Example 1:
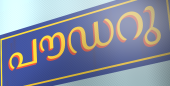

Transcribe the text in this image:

പൗഡറു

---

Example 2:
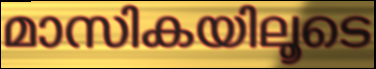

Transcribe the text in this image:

മാസികയിലൂടെ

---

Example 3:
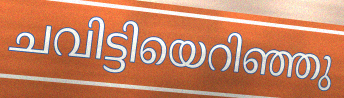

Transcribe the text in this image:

ചവിട്ടിയെറിഞ്ഞു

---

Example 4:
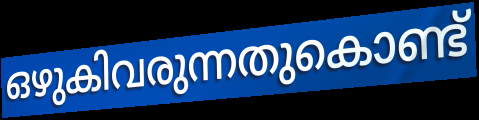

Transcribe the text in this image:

ഒഴുകിവരുന്നതുകൊണ്ട്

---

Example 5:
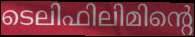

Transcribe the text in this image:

ടെലിഫിലിമിന്റെ